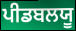
ਪੀਡਬਲਯੂ